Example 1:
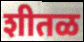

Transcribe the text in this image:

शीतळ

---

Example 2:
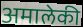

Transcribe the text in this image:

अमालेकी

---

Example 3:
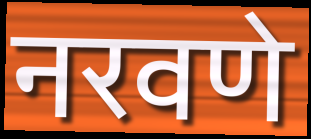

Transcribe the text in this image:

नरवणे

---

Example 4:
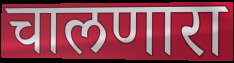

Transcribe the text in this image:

चालणारा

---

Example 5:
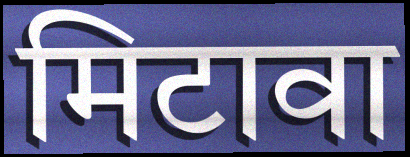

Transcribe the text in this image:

मिटावा